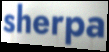
sherpa